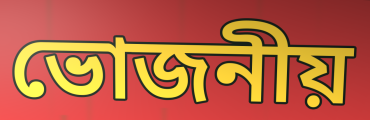
ভোজনীয়